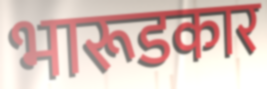
भारूडकार